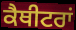
ਕੈਥੀਟਰਾਂ